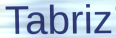
Tabriz